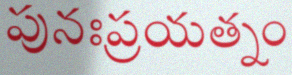
పునఃప్రయత్నం